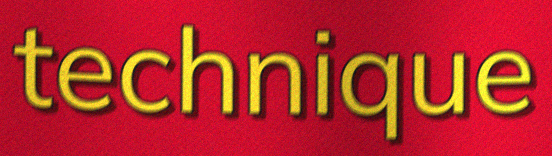
technique